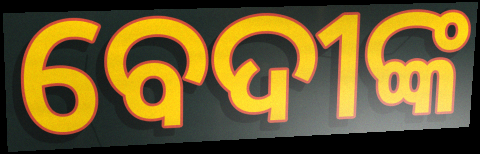
ବେଦୀଙ୍କ